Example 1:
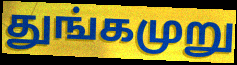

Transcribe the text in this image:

துங்கமுறு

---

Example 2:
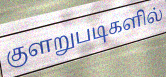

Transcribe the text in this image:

குளறுபடிகளில்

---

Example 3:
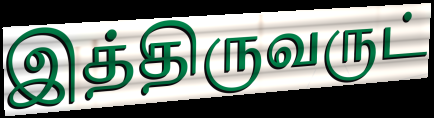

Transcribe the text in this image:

இத்திருவருட்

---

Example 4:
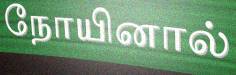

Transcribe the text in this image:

நோயினால்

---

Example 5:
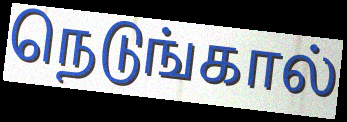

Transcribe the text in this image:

நெடுங்கால்